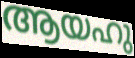
ആയഹു